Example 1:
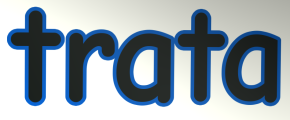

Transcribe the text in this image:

trata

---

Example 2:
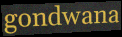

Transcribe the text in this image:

gondwana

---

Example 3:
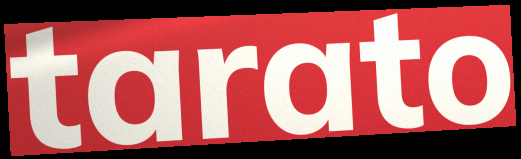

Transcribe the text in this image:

tarato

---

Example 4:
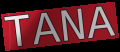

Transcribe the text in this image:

TANA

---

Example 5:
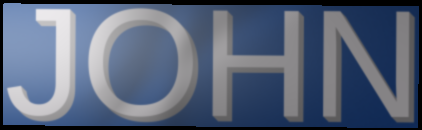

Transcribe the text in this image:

JOHN